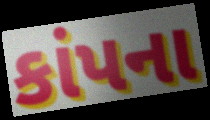
કાંપના